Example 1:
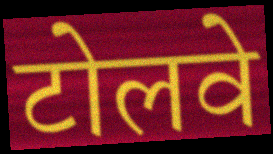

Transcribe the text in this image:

टोलवे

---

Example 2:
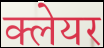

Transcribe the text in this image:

क्‍लेयर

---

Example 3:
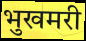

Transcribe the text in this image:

भुखमरी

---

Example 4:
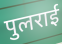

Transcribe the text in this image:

पुलराई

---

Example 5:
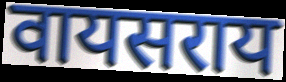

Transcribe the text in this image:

वायसराय